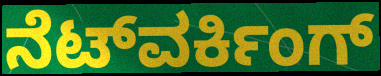
ನೆಟ್‌ವರ್ಕಿಂಗ್